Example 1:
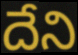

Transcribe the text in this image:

దేని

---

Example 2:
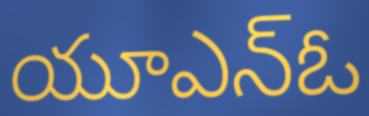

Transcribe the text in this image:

యూఎన్ఓ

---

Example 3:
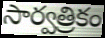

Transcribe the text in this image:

సార్వత్రికం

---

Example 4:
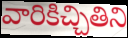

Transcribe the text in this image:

వారికిచ్చితిని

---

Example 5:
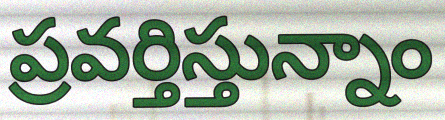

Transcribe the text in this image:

ప్రవర్తిస్తున్నాం